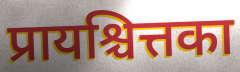
प्रायश्चित्तका